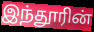
இந்தூரின்